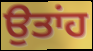
ਉਤਾਂਹ